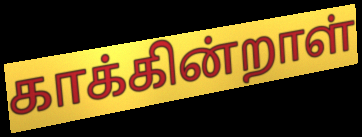
காக்கின்றாள்